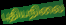
புதியநிலை